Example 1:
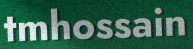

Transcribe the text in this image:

tmhossain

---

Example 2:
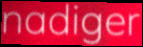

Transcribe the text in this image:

nadiger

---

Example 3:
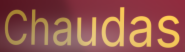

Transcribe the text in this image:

Chaudas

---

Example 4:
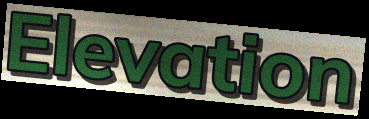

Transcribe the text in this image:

Elevation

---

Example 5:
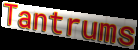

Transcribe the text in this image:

Tantrums